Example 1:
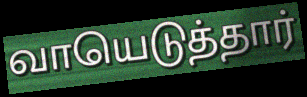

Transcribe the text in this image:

வாயெடுத்தார்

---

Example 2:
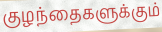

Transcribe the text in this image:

குழந்தைகளுக்கும்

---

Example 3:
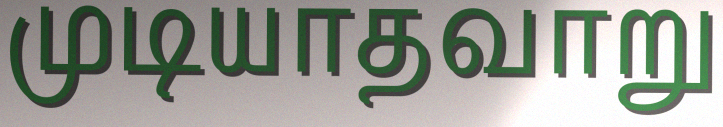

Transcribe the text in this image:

முடியாதவாறு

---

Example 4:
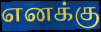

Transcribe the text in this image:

எனக்கு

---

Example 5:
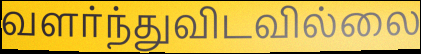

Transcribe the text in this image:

வளர்ந்துவிடவில்லை